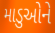
માડુઓને